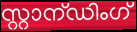
സ്റ്റാന്ഡിംഗ്